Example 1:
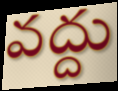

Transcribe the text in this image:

వద్దు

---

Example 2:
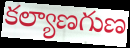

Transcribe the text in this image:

కల్యాణగుణ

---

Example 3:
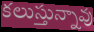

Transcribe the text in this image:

కలుస్తున్నావు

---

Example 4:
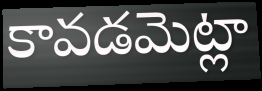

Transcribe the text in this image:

కావడమెట్లా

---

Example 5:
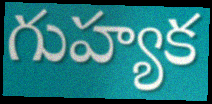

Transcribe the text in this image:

గుహ్యక